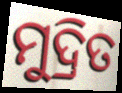
ମୁଦ୍ରିତ